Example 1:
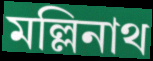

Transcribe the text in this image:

মল্লিনাথ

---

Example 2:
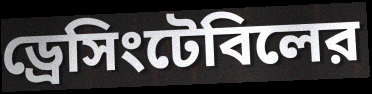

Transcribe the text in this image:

ড্রেসিংটেবিলের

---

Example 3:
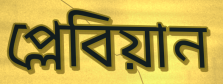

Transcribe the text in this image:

প্লেবিয়ান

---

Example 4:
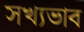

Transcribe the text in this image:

সখ্যভাব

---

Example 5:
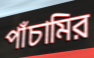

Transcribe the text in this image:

পাঁচামির